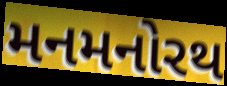
મનમનોરથ